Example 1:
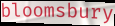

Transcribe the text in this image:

bloomsbury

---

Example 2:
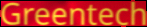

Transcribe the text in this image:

Greentech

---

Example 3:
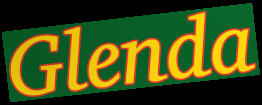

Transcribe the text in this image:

Glenda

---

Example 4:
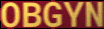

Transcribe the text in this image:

OBGYN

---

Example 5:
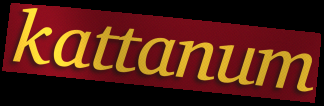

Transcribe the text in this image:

kattanum